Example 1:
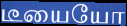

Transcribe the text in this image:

டீயையோ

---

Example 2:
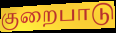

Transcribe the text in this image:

குறைபாடு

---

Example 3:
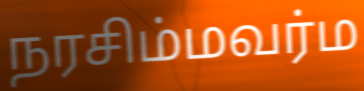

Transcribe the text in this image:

நரசிம்மவர்ம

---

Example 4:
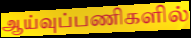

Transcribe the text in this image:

ஆய்வுப்பணிகளில்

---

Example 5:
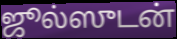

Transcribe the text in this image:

ஜூல்ஸுடன்